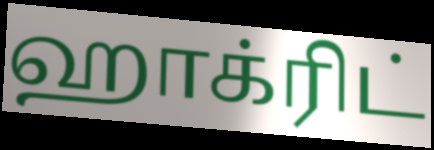
ஹாக்ரிட்